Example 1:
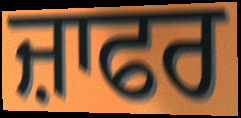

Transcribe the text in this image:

ਜ਼ਾਫਰ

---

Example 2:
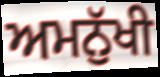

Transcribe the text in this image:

ਅਮਨੁੱਖੀ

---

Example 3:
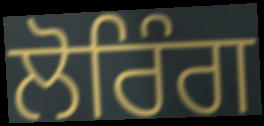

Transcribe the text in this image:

ਲੋਰਿੰਗ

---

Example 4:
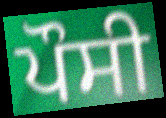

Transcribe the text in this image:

ਪੌਸੀ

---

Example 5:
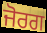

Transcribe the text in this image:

ਜੋਰਗ